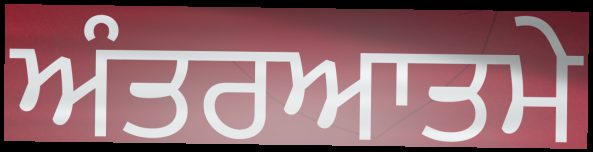
ਅੰਤਰਆਤਮੇ